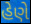
હેણે